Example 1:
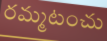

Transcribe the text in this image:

రమ్మటంచు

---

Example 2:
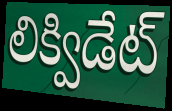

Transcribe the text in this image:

లిక్విడేట్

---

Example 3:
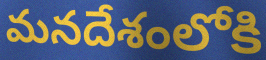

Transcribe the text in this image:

మనదేశంలోకి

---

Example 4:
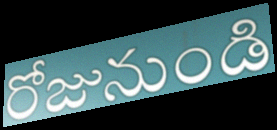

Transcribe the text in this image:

రోజునుండి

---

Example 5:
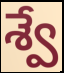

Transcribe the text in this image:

శ్వే